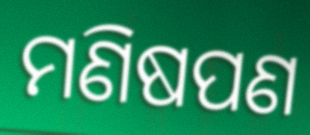
ମଣିଷପଣ